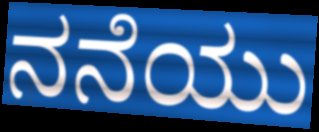
ನನೆಯು